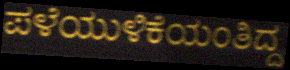
ಪಳೆಯುಳಿಕೆಯಂತಿದ್ದ